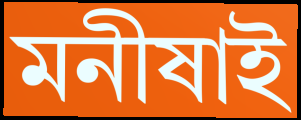
মনীষাই